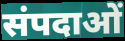
संपदाओं